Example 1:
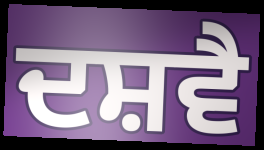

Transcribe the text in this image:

ਦਸ਼ਵੈ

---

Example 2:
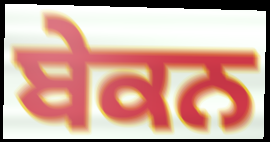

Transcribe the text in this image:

ਬੇਕਨ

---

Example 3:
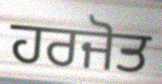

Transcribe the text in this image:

ਹਰਜੋਤ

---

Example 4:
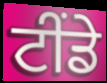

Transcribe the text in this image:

ਟੀਂਡੇ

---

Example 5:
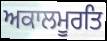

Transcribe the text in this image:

ਅਕਾਲਮੂਰਤਿ